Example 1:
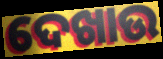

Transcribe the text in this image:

ଦେଖାଉ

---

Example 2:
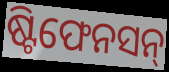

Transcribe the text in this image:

ଷ୍ଟିଫେନସନ୍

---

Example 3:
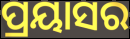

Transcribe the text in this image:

ପ୍ରୟାସର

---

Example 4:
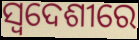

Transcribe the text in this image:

ସ୍ୱଦେଶୀରେ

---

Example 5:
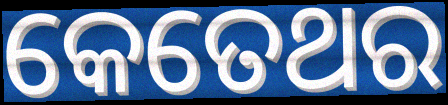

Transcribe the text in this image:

କେତେଥର